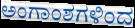
ಅಂಗಾಂಶಗಳಿಂದ